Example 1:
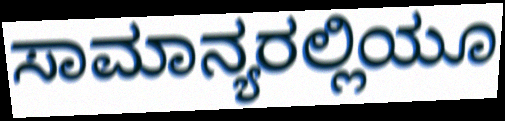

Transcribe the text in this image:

ಸಾಮಾನ್ಯರಲ್ಲಿಯೂ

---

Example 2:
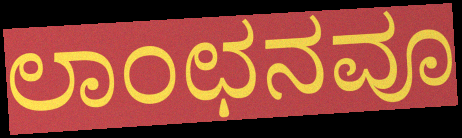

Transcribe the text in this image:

ಲಾಂಛನವೂ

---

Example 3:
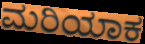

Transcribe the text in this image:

ಮರಿಯಾಕ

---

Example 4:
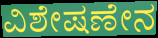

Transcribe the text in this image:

ವಿಶೇಷಣೇನ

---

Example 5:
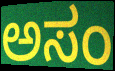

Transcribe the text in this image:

ಅಸಂ